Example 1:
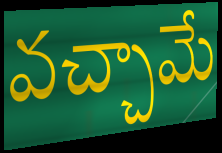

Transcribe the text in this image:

వచ్చామే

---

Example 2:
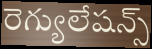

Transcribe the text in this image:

రెగ్యులేషన్స్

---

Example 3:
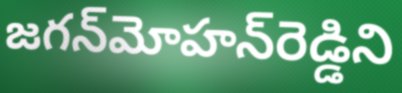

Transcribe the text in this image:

జగన్‌మోహన్‌రెడ్డిని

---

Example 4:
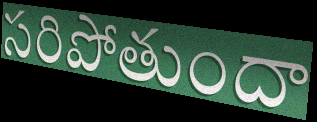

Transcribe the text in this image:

సరిపోతుందా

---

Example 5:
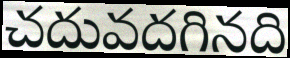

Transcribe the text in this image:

చదువదగినది